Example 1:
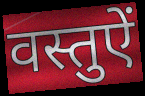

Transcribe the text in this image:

वस्तुऐं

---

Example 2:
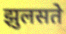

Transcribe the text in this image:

झुलसते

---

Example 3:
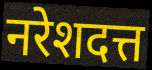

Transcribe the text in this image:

नरेशदत्त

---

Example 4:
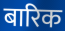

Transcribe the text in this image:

बारिक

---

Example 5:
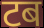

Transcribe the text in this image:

टब